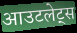
आउटलेट्स